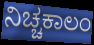
ನಿಚ್ಚಕಾಲಂ